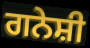
ਗਨੇਸ਼ੀ